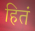
हितं